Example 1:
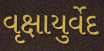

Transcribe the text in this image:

વૃક્ષાયુર્વેદ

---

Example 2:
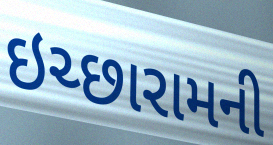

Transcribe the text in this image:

ઇચ્છારામની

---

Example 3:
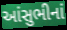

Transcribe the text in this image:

આંસુભીનાં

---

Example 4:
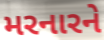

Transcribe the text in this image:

મરનારને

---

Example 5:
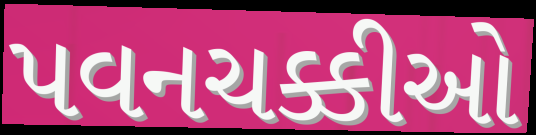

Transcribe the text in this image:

પવનચક્કીઓ